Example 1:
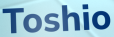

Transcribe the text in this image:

Toshio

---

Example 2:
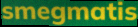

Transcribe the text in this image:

smegmatis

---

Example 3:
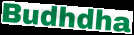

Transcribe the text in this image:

Budhdha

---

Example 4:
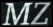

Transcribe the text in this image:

MZ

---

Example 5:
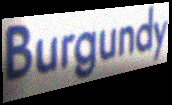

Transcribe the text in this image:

Burgundy